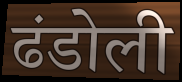
ढंडोली